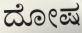
ದೋಷ